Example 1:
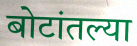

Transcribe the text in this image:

बोटांतल्या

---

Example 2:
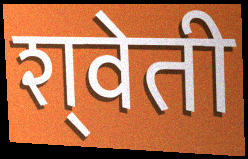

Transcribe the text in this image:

श्वेती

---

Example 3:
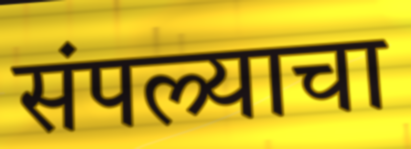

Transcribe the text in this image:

संपल्याचा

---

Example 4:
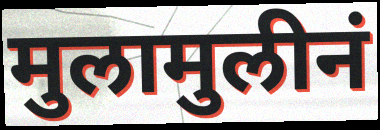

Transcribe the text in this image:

मुलामुलीनं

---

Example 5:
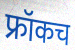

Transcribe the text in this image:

फ्रॉकच